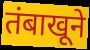
तंबाखूने